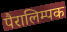
पैरालिम्पक